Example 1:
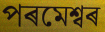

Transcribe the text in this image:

পৰমেশ্বৰ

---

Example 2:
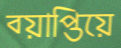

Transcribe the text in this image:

ব্য়াপ্তিয়ে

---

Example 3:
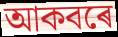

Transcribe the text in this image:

আকবৰে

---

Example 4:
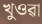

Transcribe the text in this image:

খুওৱা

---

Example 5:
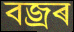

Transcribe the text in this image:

বজ্ৰৰ